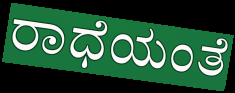
ರಾಧೆಯಂತೆ